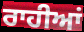
ਰਾਹੀਆਂ